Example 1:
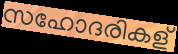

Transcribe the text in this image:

സഹോദരികള്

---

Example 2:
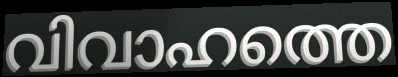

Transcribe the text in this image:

വിവാഹത്തെ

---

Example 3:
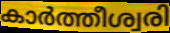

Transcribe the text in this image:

കാർത്തീശ്വരി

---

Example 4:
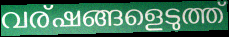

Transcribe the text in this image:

വര്ഷങ്ങളെടുത്ത്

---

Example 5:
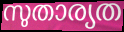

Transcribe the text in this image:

സുതാര്യത